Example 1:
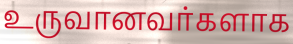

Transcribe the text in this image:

உருவானவர்களாக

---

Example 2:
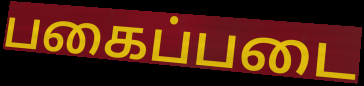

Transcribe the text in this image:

பகைப்படை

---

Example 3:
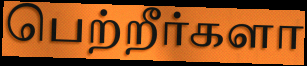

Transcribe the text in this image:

பெற்றீர்களா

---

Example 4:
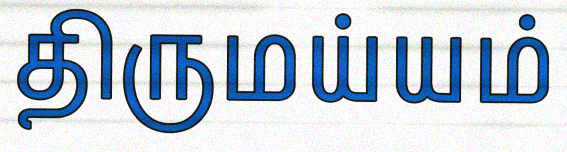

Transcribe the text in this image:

திருமய்யம்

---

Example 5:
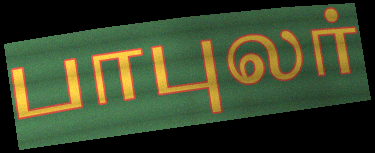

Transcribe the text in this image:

பாபுலர்